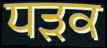
ਧੜਕ